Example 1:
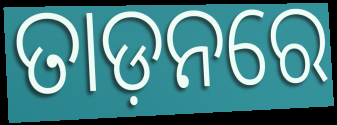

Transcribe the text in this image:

ତାଡ଼ନରେ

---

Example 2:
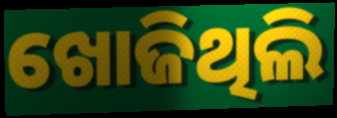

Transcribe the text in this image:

ଖୋଜିଥିଲି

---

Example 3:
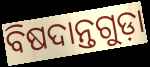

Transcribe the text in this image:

ବିଷଦାନ୍ତଗୁଡ଼ା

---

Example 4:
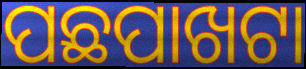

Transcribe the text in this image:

ପଛପାଖଟା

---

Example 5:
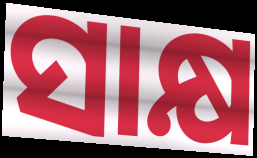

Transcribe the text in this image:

ସାକ୍ଷ